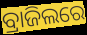
ବ୍ରାଜିଲରେ